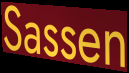
Sassen